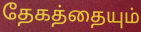
தேகத்தையும்